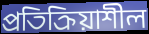
প্রতিক্রিয়াশীল